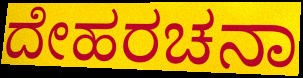
ದೇಹರಚನಾ